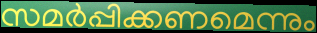
സമർപ്പിക്കണമെന്നും